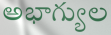
అభాగ్యుల